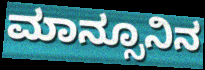
ಮಾನ್ಸೂನಿನ